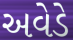
અવેડે